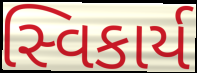
સ્વિકાર્ય